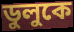
ডুলুকে